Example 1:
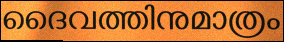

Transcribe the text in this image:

ദൈവത്തിനുമാത്രം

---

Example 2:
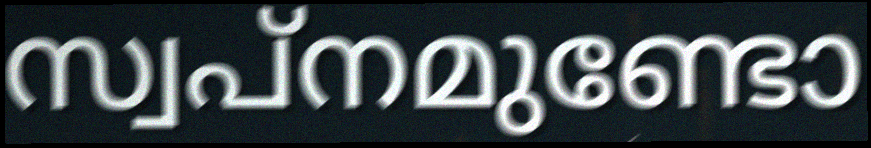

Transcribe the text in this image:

സ്വപ്നമുണ്ടോ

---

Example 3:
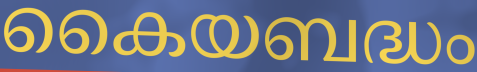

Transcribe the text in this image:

കൈയബദ്ധം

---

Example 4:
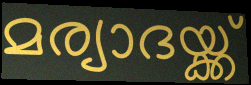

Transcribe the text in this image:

മര്യാദയ്ക്ക്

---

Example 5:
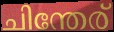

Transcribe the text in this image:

ചിന്തേര്